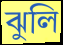
ঝুলি